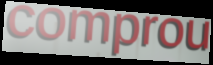
comprou